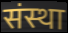
संस्था